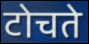
टोचते